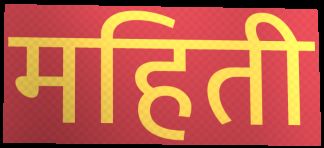
महिती